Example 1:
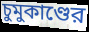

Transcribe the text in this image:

চুমুকাণ্ডের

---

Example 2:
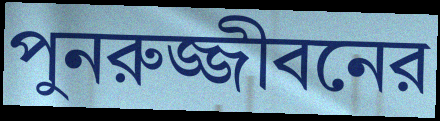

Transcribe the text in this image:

পুনরুজ্জীবনের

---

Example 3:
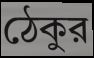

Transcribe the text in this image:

ঠেকুর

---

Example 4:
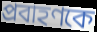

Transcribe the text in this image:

প্রবাহণকে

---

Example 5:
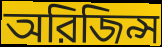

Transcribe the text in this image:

অরিজিন্স